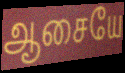
ஆசையே